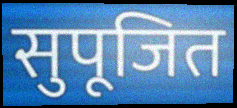
सुपूजित